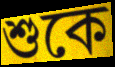
শুকে